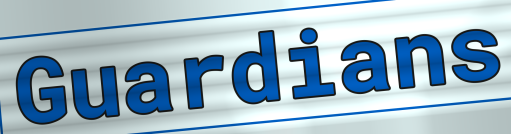
Guardians